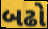
બઢો